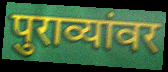
पुराव्यांवर